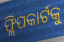
ଫ୍ଲିପକାର୍ଟକୁ